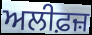
ਅਲੀਫ਼ਜ਼